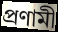
প্রণামী